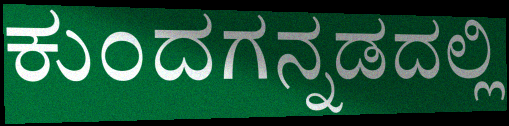
ಕುಂದಗನ್ನಡದಲ್ಲಿ